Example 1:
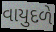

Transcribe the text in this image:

વાયુદળે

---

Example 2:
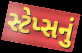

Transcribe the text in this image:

સ્ટેપ્સનું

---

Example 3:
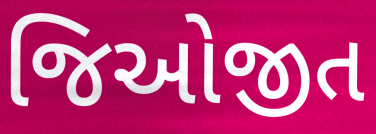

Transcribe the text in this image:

જિઓજીત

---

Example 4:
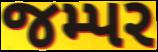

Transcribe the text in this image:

જમ્પર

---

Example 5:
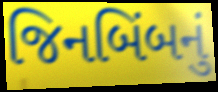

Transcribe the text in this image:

જિનબિંબનું